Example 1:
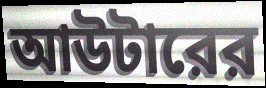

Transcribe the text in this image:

আউটারের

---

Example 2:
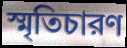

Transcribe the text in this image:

স্মৃতিচারণ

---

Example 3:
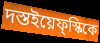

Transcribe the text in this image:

দস্তইয়েফ্স্কিকে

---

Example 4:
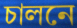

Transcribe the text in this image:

চালনে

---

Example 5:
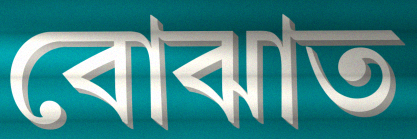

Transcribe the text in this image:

বোঝাত